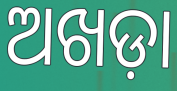
ଅଖଡ଼ା